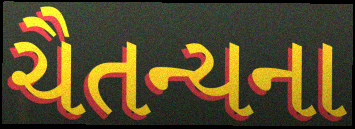
ચૈતન્યના